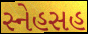
સ્નેહસહ